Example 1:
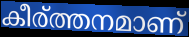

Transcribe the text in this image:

കീര്ത്തനമാണ്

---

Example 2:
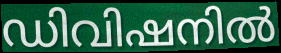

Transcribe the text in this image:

ഡിവിഷനിൽ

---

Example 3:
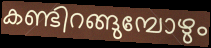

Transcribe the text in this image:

കണ്ടിറങ്ങുമ്പോഴും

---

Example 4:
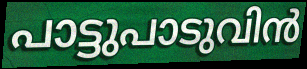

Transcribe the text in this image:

പാട്ടുപാടുവിൻ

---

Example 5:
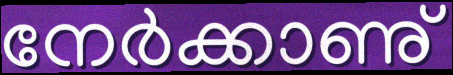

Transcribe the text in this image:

നേർക്കാണു്